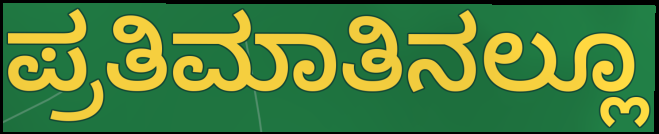
ಪ್ರತಿಮಾತಿನಲ್ಲೂ